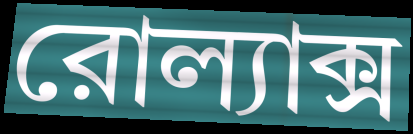
রোল্যাক্স